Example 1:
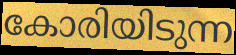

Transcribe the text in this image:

കോരിയിടുന്ന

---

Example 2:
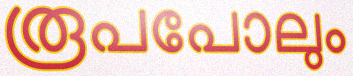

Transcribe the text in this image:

രൂപപോലും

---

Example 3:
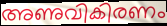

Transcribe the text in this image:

അണുവികിരണം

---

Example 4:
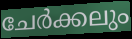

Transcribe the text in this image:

ചേർക്കലും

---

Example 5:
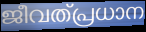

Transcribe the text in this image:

ജീവത്പ്രധാന